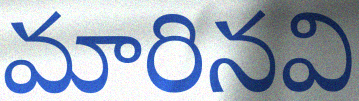
మారినవి